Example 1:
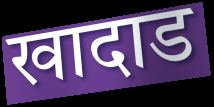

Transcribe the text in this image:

खादाड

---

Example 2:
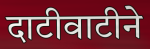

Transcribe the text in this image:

दाटीवाटीने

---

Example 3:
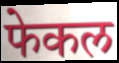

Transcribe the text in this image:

फेकल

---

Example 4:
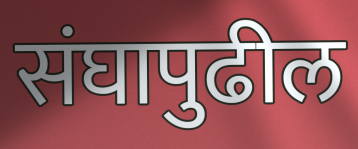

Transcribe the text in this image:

संघापुढील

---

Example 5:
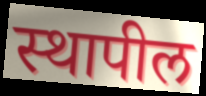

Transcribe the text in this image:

स्थापील